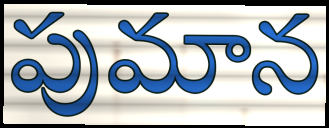
పుమాన